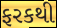
ફરકથી